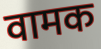
वामक